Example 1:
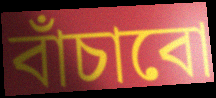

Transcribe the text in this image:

বাঁচাবো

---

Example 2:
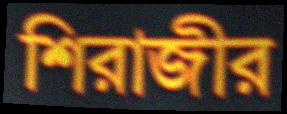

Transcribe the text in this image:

শিরাজীর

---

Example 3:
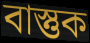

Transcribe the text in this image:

বাস্তুক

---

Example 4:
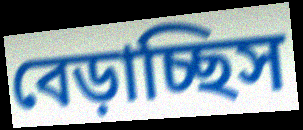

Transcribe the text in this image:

বেড়াচ্ছিস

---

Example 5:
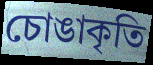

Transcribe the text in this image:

চোঙাকৃতি